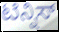
ಟೆನ್ನಿಸ್